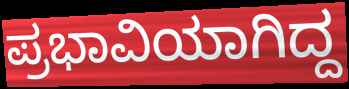
ಪ್ರಭಾವಿಯಾಗಿದ್ದ